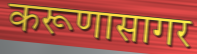
करूणासागर